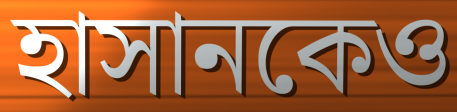
হাসানকেও